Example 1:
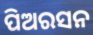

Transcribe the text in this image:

ପିଅରସନ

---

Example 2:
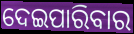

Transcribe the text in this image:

ଦେଇପାରିବାର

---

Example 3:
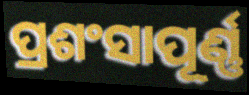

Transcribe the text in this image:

ପ୍ରଶଂସାପୂର୍ଣ୍ଣ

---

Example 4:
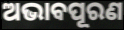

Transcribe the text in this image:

ଅଭାବପୂରଣ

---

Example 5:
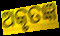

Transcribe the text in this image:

ଅକୃତଜ୍ଞ